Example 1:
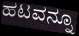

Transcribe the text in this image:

ಹಟವನ್ನೂ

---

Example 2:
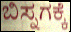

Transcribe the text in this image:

ಬಿಸ್ನಗಕ್ಕೆ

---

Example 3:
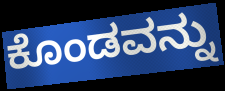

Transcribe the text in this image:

ಕೊಂಡವನ್ನು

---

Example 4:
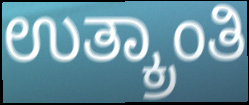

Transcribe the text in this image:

ಉತ್ಕ್ರಾಂತಿ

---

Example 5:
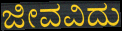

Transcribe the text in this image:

ಜೀವವಿದು